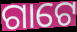
ଗାଟେ